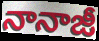
నానాజీ